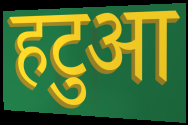
हटुआ